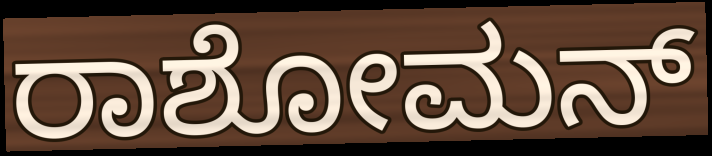
ರಾಶೋಮನ್